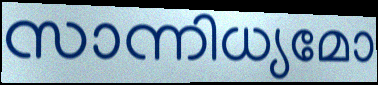
സാന്നിധ്യമോ